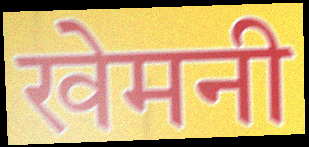
खेमनी